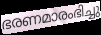
ഭരണമാരംഭിച്ചു